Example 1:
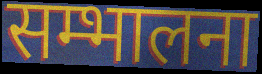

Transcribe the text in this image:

सम्भालना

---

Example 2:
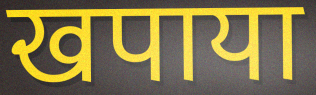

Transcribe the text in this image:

खपाया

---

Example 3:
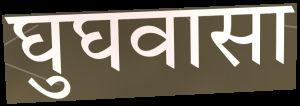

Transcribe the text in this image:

घुघवासा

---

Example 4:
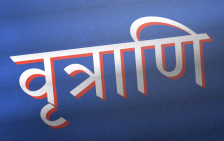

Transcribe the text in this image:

वृत्राणि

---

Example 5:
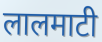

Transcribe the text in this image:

लालमाटी